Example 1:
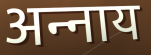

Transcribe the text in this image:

अन्नाय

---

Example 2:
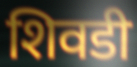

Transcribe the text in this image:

शिवडी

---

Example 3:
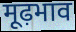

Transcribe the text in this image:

मूढ़भाव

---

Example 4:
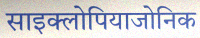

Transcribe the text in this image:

साइक्लोपियाजोनिक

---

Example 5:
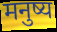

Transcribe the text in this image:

मनुष्य